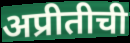
अप्रीतीची